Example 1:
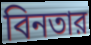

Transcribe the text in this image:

বিনতার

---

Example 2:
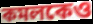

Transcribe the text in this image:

কমলকেও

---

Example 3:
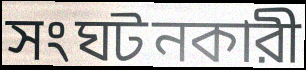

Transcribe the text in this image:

সংঘটনকারী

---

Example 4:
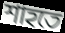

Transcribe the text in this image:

শাহতে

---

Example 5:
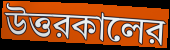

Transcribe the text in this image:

উত্তরকালের